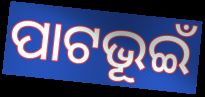
ପାଟଭୂଇଁ